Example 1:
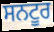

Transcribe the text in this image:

ਸਨਟੂਰ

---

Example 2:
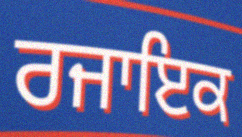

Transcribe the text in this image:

ਰਜਾਇਕ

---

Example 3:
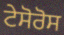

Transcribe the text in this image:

ਟੇਸੋਰੋਸ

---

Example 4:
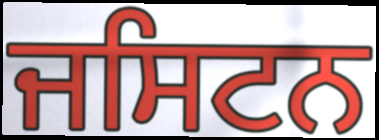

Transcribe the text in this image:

ਜਸਿਟਨ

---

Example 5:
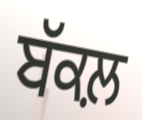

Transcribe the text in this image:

ਬੱਕਲ਼